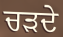
ਚੜਦੇ